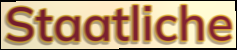
Staatliche